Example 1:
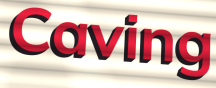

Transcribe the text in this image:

Caving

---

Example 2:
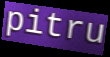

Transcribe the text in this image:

pitru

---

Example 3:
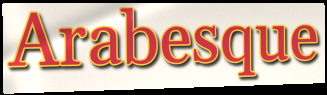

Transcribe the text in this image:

Arabesque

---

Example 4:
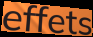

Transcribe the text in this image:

effets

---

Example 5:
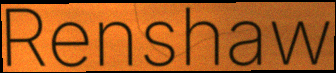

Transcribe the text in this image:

Renshaw